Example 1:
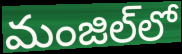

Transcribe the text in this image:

మంజిల్‌లో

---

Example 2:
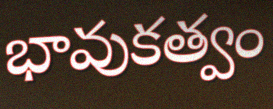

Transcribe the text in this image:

భావుకత్వం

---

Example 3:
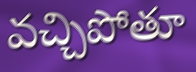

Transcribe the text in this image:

వచ్చిపోతూ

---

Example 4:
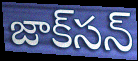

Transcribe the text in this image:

జాక్‌సన్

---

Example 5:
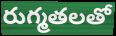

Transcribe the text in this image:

రుగ్మతలతో